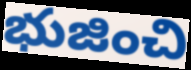
భుజించి